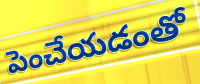
పెంచేయడంతో